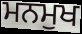
ਮਨਮੁਖ